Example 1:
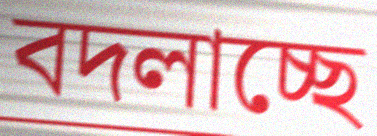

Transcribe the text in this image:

বদলাচ্ছে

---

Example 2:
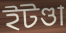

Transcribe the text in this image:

ইটণ্ডা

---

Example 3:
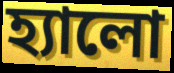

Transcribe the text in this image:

হ্যালো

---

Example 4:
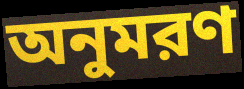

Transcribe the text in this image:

অনুমরণ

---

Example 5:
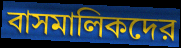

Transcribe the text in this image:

বাসমালিকদের